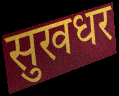
सुखधर